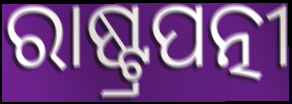
ରାଷ୍ଟ୍ରପତ୍ନୀ